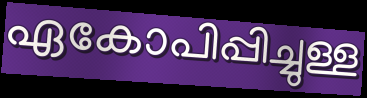
ഏകോപിപ്പിച്ചുള്ള